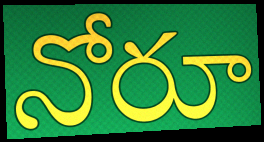
నోరూ